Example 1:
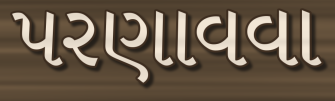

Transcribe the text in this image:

પરણાવવા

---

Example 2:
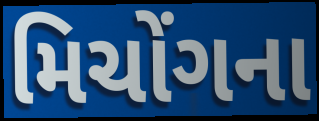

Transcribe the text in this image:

મિચોંગના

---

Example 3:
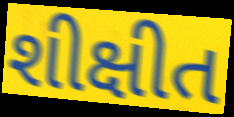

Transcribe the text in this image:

શીક્ષીત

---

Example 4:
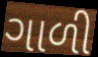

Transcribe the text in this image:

ગાળી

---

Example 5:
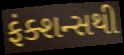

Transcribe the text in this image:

ફંક્શન્સથી